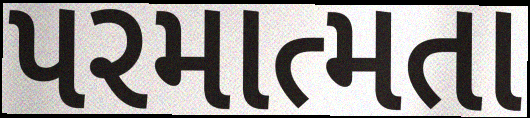
પરમાત્મતા